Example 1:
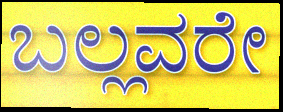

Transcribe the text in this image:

ಬಲ್ಲವರೇ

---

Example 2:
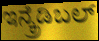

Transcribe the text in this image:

ಇನ್ಕ್ರೆಡಿಬಲ್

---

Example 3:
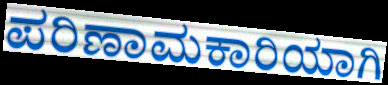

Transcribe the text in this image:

ಪರಿಣಾಮಕಾರಿಯಾಗಿ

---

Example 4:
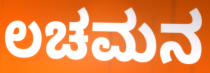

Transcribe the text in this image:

ಲಚಮನ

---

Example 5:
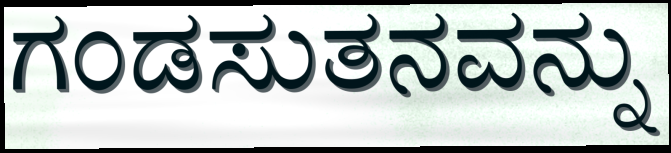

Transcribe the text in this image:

ಗಂಡಸುತನವನ್ನು